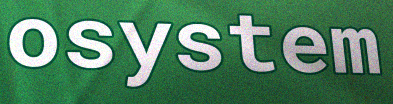
osystem